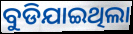
ବୁଡିଯାଇଥିଲା